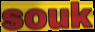
souk